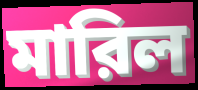
মারিল